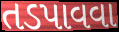
તડપાવવા